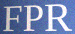
FPR